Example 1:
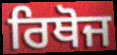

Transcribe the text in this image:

ਰਿਥੋਜ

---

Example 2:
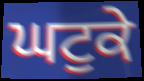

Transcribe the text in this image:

ਘਟੁਕੇ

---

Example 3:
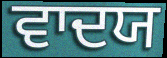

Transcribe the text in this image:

ਵਾਦਯ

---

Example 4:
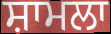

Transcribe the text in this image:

ਸ਼ਾਮਲਾ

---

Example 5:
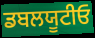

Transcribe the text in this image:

ਡਬਲਯੂਟੀਓ